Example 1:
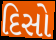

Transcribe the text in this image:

દિસો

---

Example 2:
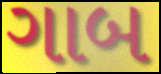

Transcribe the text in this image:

ગાબ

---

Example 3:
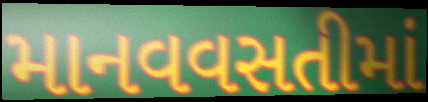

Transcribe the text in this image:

માનવવસતીમાં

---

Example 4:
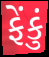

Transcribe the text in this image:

ફેંકું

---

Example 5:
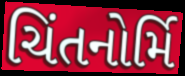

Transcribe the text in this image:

ચિંતનોર્મિ